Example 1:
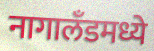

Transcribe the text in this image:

नागालॅंडमध्ये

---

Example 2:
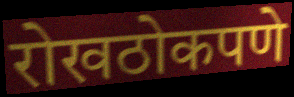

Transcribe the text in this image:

रोखठोकपणे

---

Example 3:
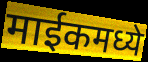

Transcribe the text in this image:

माईकमध्ये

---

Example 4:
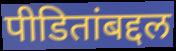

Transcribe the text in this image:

पीडितांबद्दल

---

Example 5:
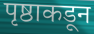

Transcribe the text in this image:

पृष्ठाकडून